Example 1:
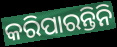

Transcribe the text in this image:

କରିପାରନ୍ତିନି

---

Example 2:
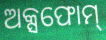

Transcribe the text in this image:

ଅକ୍ସଫୋମ୍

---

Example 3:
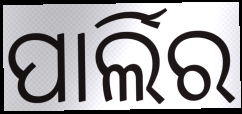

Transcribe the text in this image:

ପାର୍ଲିର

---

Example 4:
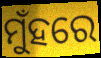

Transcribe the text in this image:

ମୁଁହରେ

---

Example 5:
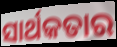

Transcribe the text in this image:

ସାର୍ଥକତାର